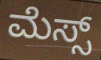
ಮೆಸ್ಸ್